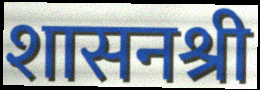
शासनश्री